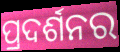
ପ୍ରଦର୍ଶନର